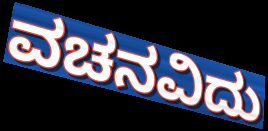
ವಚನವಿದು